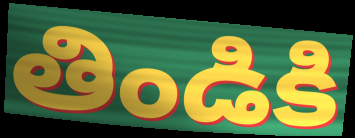
తిండికి